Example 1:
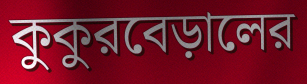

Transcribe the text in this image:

কুকুরবেড়ালের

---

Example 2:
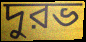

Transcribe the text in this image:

দুরভ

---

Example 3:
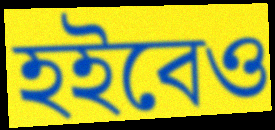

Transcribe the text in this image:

হইবেও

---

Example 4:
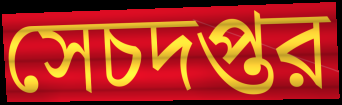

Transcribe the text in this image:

সেচদপ্তর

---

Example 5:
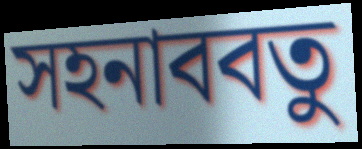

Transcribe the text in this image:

সহনাববতু